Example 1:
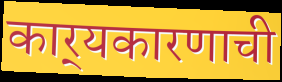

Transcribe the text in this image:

कार्यकारणाची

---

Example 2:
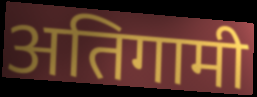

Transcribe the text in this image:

अतिगामी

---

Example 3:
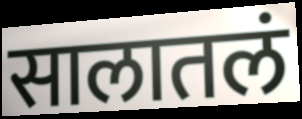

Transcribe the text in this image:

सालातलं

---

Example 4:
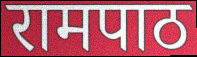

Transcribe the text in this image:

रामपाठ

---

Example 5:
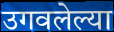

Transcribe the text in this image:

उगवलेल्या